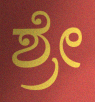
ಶ್ರೇ